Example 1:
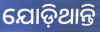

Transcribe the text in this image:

ଯୋଡ଼ିଥାନ୍ତି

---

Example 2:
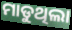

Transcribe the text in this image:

ମାଡୁଥିଲା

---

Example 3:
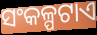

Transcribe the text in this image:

ସଂକଳ୍ପଟାଏ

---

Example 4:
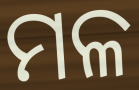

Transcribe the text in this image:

ମଳ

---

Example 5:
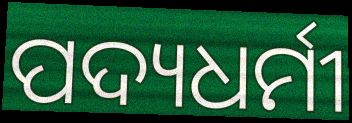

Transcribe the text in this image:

ପଦ୍ୟଧର୍ମୀ